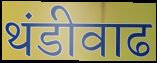
थंडीवाढ